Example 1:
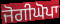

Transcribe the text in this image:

ਜੋਗੀਘੋਪਾ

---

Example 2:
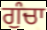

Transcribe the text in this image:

ਗੁੰਚਾ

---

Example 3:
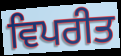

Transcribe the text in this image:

ਵਿਪਰੀਤ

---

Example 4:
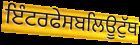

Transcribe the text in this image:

ਇੰਟਰਫੇਸਬਲਿਊਟੁੱਥ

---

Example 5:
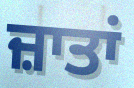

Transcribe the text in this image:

ਜ਼ਾਤਾਂ